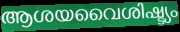
ആശയവൈശിഷ്ട്യം